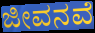
ಜೀವನವೆ